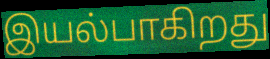
இயல்பாகிறது